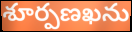
శూర్పణఖను